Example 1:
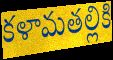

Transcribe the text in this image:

కళామతల్లికి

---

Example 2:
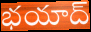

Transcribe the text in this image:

భయాద్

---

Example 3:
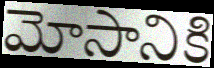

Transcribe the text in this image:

మోసానికి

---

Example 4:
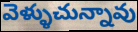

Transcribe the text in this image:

వెళ్ళుచున్నావు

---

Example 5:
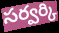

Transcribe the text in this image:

సర్వర్కి